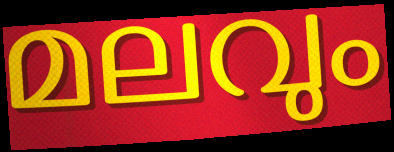
മലവും